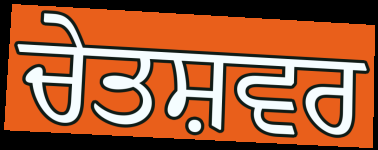
ਚੇਤਸ਼ਵਰ